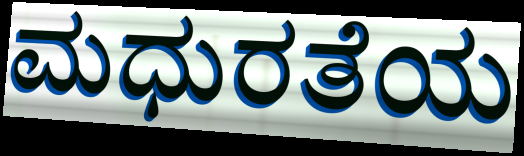
ಮಧುರತೆಯ